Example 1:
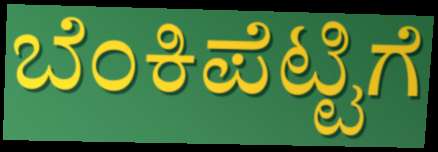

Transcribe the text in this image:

ಬೆಂಕಿಪೆಟ್ಟಿಗೆ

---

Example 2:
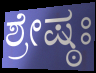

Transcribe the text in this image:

ಶ್ರೇಷ್ಠಃ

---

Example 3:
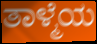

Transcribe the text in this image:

ತಾಳ್ಮೆಯ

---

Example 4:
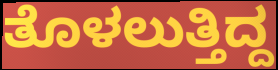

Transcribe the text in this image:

ತೊಳಲುತ್ತಿದ್ದ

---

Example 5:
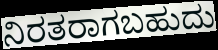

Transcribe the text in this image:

ನಿರತರಾಗಬಹುದು